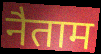
नैताम